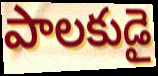
పాలకుడై